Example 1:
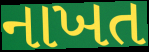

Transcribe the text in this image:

નાખત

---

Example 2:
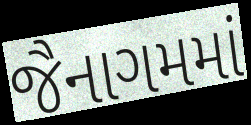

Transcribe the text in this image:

જૈનાગમમાં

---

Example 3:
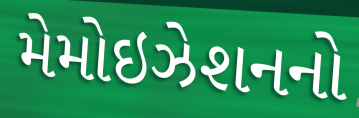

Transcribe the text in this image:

મેમોઇઝેશનનો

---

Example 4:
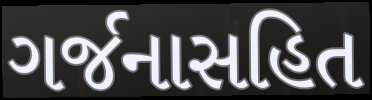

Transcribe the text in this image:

ગર્જનાસહિત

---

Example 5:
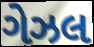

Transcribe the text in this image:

ગેઝલ